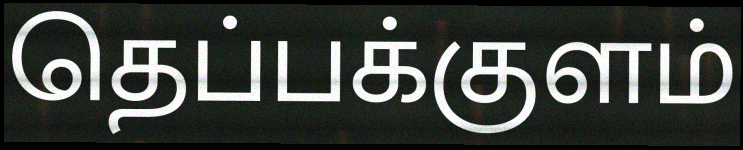
தெப்பக்குளம்